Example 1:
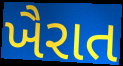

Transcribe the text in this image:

ખૈરાત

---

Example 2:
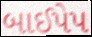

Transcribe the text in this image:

બાઈપેપ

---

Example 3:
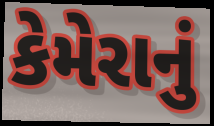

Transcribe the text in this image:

કેમેરાનું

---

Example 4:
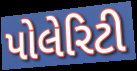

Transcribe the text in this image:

પોલેરિટી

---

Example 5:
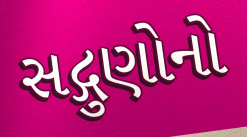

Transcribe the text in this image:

સદ્ગુણોનો